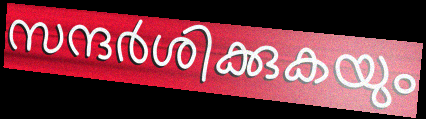
സന്ദർശിക്കുകയും